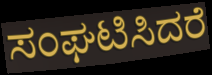
ಸಂಘಟಿಸಿದರೆ